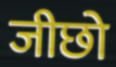
जीछो